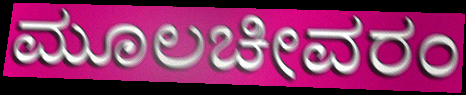
ಮೂಲಚೀವರಂ